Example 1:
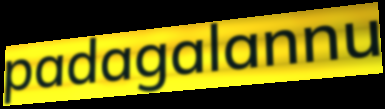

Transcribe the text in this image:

padagalannu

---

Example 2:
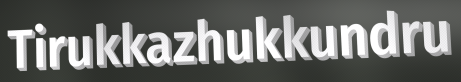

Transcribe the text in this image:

Tirukkazhukkundru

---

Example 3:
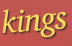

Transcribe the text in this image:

kings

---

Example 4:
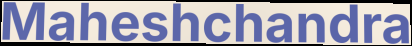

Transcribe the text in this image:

Maheshchandra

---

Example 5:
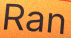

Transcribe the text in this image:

Ran